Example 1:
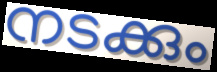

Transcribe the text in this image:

നടക്കും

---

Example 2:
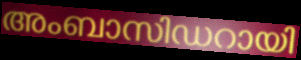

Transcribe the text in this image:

അംബാസിഡറായി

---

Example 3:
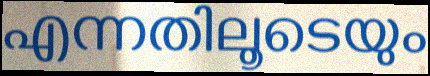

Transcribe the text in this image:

എന്നതിലൂടെയും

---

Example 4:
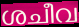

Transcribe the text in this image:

ശചീവ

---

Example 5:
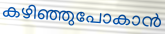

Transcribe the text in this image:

കഴിഞ്ഞുപോകാൻ